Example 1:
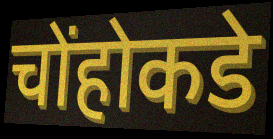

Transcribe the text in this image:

चोंहोकडे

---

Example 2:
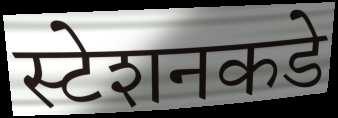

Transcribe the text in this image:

स्टेशनकडे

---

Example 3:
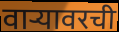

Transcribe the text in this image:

वार्‍यावरची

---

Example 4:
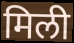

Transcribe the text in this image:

मिली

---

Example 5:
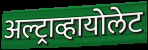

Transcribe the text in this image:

अल्ट्राव्हायोलेट